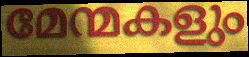
മേന്മകളും